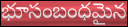
భూసంబంధమైన